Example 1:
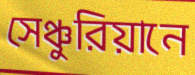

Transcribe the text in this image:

সেঞ্চুরিয়ানে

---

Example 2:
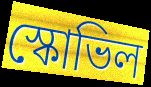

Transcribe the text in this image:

স্কোভিল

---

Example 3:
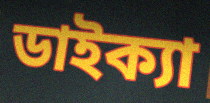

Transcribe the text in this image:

ডাইক্যা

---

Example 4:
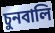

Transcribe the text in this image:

চুনবালি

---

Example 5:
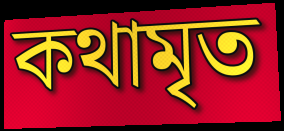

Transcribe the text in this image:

কথামৃত